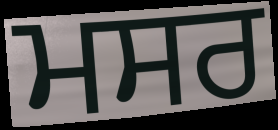
ਮਸਰ